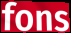
fons